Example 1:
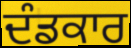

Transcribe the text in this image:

ਦੰਡਕਾਰ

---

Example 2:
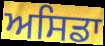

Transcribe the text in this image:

ਅਸਿਡਾ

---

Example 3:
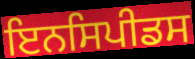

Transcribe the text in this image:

ਇਨਸਿਪੀਡਸ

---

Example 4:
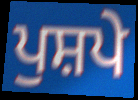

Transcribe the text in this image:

ਪੁਸ਼ਪੇ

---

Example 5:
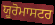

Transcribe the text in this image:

ਯੂਰੋਮਾਸਟਰ